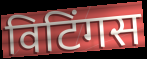
विटिंगस